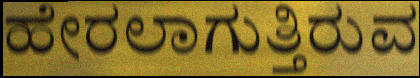
ಹೇರಲಾಗುತ್ತಿರುವ